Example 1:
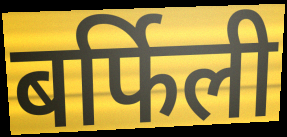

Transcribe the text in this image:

बर्फिली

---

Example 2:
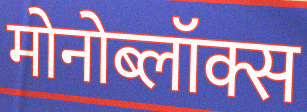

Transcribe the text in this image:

मोनोब्लॉक्स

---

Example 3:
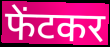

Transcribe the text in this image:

फेंटकर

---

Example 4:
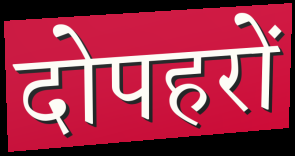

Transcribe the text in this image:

दोपहरों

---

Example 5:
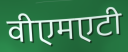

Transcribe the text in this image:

वीएमएटी